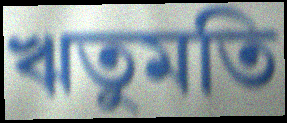
ঋতুমতি